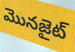
మొనజైట్